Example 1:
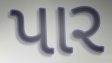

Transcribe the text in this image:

પાર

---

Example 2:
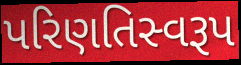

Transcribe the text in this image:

પરિણતિસ્વરૂપ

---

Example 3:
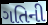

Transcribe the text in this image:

ગતિની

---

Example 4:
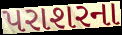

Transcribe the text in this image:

પરાશરના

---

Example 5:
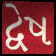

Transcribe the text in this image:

દ્વેષ